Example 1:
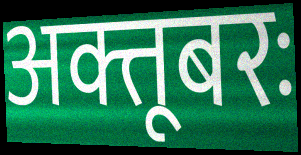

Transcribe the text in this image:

अक्तूबरः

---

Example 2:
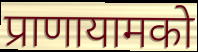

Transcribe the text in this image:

प्राणायामको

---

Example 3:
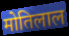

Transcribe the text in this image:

मोतिलाल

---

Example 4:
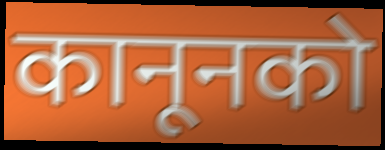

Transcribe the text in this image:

कानूनको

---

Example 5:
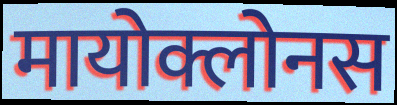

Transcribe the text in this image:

मायोक्लोनस